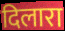
दिलारा